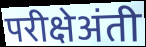
परीक्षेअंती